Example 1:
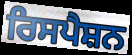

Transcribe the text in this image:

ਰਿਸਪੈਸ਼ਨ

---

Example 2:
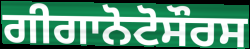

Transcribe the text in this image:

ਗੀਗਾਨੋਟੋਸੌਰਸ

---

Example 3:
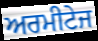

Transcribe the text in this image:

ਅਰਮੀਟੇਜ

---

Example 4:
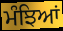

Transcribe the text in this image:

ਮੰਝਿਆਂ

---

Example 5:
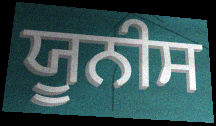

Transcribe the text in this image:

ਯੂਨੀਸ